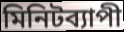
মিনিটব্যাপী